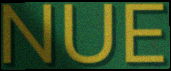
NUE